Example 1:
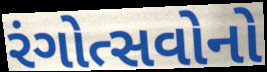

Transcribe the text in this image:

રંગોત્સવોનો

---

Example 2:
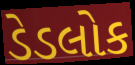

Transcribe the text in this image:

ડેડલોક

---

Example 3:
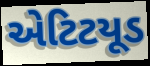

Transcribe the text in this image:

એટિટયૂડ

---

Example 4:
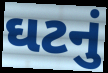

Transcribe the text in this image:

ઘટનું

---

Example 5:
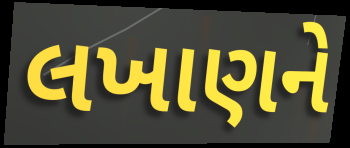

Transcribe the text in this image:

લખાણને